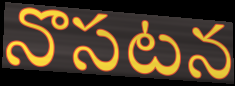
నొసటన